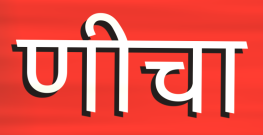
णीचा